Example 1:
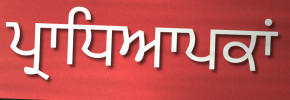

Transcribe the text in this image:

ਪ੍ਰਾਧਿਆਪਕਾਂ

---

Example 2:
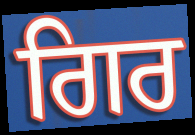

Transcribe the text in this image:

ਗਿਰ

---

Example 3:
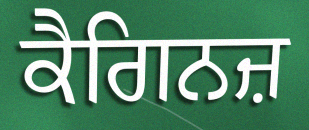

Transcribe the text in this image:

ਕੈਗਿਨਜ਼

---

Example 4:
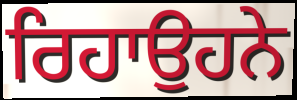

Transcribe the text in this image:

ਰਿਹਾਉਹਨੇ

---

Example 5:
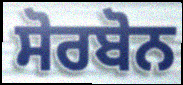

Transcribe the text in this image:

ਸੋਰਬੋਨ